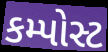
કમ્પોસ્ટ